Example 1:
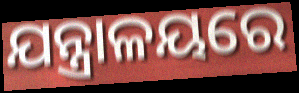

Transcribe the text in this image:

ଯନ୍ତ୍ରାଳୟରେ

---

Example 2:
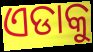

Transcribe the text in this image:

ଏଡାକୁ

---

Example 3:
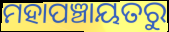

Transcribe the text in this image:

ମହାପଞ୍ଚାୟତରୁ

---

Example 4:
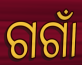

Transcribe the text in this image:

ଗଗାଁ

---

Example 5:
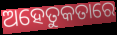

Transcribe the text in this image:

ଅହେତୁକତାରେ